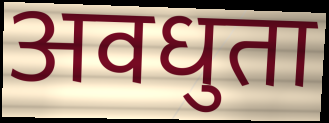
अवधुता